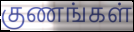
குணங்கள்